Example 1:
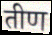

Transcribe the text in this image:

तीण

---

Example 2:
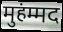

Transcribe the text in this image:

मुहंम्मद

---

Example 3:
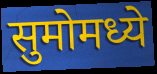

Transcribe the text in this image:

सुमोमध्ये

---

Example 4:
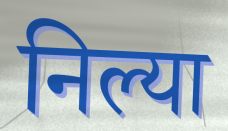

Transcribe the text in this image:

निल्या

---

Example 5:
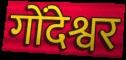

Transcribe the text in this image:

गोंदेश्वर